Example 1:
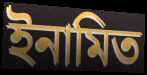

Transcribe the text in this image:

ইনামিত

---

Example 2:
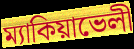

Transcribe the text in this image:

ম্যাকিয়াভেলী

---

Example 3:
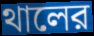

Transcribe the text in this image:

থালের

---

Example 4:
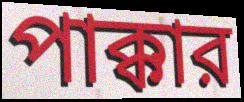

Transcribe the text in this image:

পাক্কার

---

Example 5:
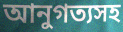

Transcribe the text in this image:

আনুগত্যসহ